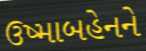
ઉષ્માબહેનને